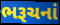
ભરૂચનાં